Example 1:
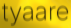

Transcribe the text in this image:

tyaare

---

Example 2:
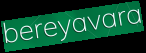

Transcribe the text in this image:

bereyavara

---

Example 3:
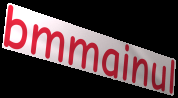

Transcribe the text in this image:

bmmainul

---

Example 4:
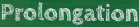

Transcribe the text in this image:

Prolongation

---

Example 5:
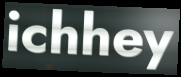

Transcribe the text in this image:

ichhey